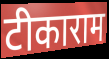
टीकाराम